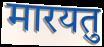
मारयतु